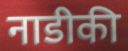
नाडीकी